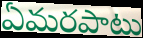
ఏమరపాటు